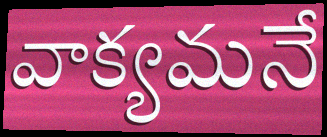
వాక్యమనే